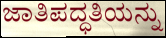
ಜಾತಿಪದ್ಧತಿಯನ್ನು